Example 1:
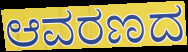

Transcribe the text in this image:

ಆವರಣದ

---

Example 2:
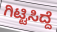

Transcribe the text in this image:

ಗಿಟ್ಟಿಸಿದ್ದೆ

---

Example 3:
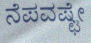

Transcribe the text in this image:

ನೆಪವಷ್ಟೇ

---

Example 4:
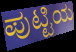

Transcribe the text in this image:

ಪುಟ್ಟಿಯ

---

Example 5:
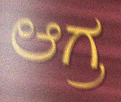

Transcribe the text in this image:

ಆಗ್ರ